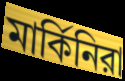
মার্কিনিরা